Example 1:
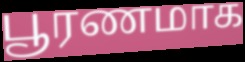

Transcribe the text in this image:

பூரணமாக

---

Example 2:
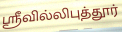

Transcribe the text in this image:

ஸ்ரீவில்லிபுத்தூர்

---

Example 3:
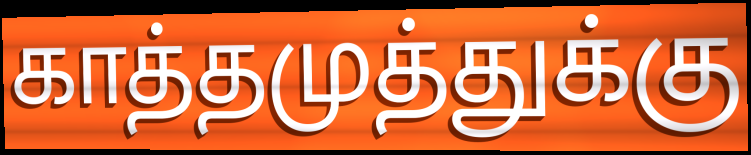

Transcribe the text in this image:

காத்தமுத்துக்கு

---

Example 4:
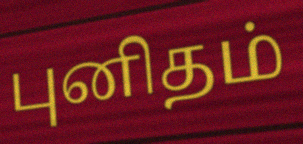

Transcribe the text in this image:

புனிதம்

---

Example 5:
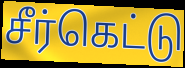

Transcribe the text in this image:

சீர்கெட்டு